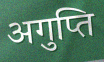
अगुप्ति